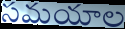
సమయాల